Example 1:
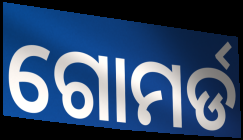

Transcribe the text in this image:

ଗୋମର୍ଡ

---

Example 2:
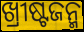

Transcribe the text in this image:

ଖ୍ରୀଷ୍ଟଜନ୍ମ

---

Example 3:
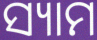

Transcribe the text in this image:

ସ୍ୟାମ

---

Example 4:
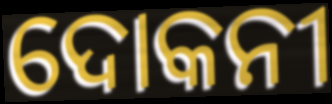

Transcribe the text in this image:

ଦୋକନୀ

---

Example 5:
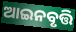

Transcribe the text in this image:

ଆଇନବୃତ୍ତି